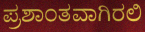
ಪ್ರಶಾಂತವಾಗಿರಲಿ